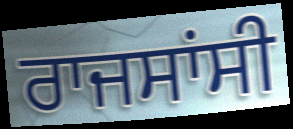
ਰਾਜਸਾਂਸੀ